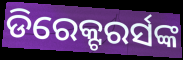
ଡିରେକ୍ଟରର୍ସଙ୍କ